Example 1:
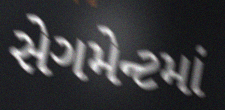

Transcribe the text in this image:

સેગમેન્ટમાં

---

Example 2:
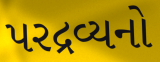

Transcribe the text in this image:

પરદ્રવ્યનો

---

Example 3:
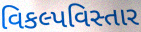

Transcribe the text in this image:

વિકલ્પવિસ્તાર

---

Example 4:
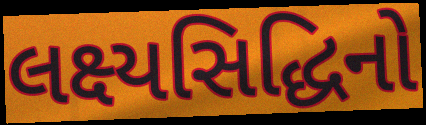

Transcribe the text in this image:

લક્ષ્યસિદ્ધિનો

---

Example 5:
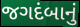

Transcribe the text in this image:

જગદંબાનું